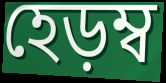
হেড়ম্ব